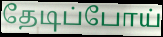
தேடிப்போய்